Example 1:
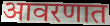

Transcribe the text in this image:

आवरणात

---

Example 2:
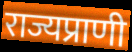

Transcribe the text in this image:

राज्यप्राणी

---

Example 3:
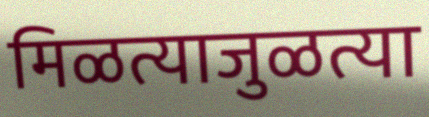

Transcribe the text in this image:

मिळत्याजुळत्या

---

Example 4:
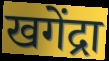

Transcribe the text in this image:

खगेंद्रा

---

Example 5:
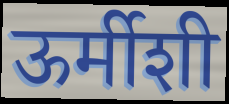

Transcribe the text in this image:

ऊर्मीशी